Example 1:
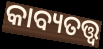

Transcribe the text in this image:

କାବ୍ୟତତ୍ତ୍ୱ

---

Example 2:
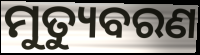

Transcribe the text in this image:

ମୁତ୍ୟୁବରଣ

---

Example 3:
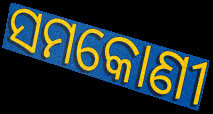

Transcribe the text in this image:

ସମକୋଣୀ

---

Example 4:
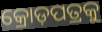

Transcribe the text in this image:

କ୍ରୋଡ଼ପତ୍ରକୁ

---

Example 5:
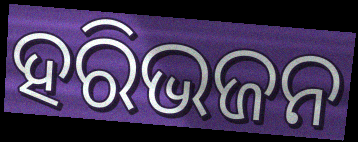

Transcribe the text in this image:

ହରିଭଜନ